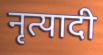
नृत्यादी